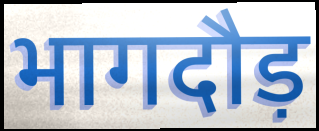
भागदौड़